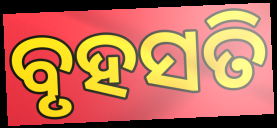
ବୃହସତି